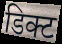
डिक्ट